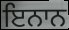
ਇਨਾਨ